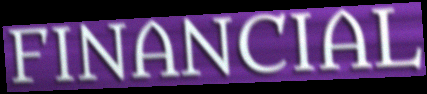
FINANCIAL